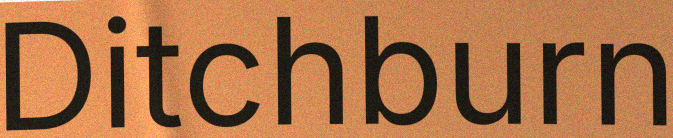
Ditchburn